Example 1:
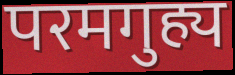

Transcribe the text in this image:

परमगुह्य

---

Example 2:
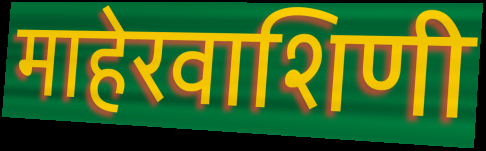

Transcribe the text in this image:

माहेरवाशिणी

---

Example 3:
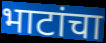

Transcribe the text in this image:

भाटांचा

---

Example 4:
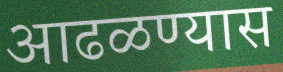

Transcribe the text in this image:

आढळण्यास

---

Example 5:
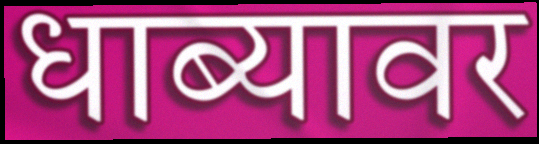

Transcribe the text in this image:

धाब्यावर